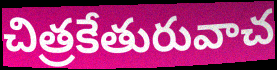
చిత్రకేతురువాచ